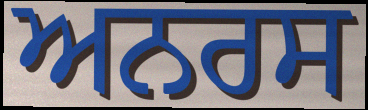
ਅਨਰਸ